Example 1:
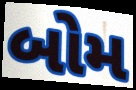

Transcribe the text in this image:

બોમ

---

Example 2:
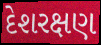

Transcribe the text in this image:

દેશરક્ષણ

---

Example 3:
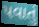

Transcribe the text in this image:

પવાતું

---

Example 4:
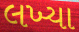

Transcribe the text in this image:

લખ્યા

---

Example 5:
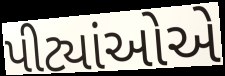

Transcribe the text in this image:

પીટ્યાંઓએ